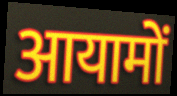
आयामों